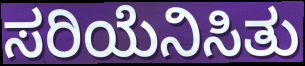
ಸರಿಯೆನಿಸಿತು